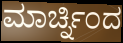
ಮಾರ್ಚ್ನಿಂದ